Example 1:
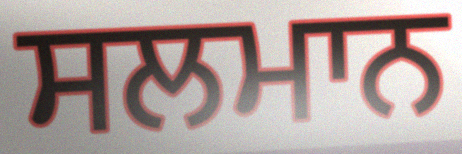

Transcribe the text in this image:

ਸਲਮਾਨ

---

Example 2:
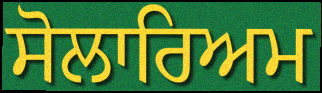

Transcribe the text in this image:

ਸੋਲਾਰਿਅਮ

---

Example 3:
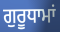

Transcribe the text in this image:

ਗੁਰੂਧਾਮਾਂ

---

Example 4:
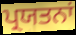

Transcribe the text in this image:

ਪ੍ਰਯਤਨਾਂ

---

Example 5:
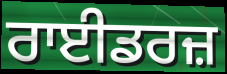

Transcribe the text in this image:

ਰਾਈਡਰਜ਼